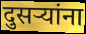
दुसर्‍यांना